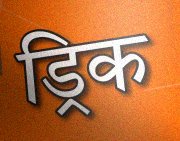
ड्रिक